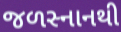
જળસ્નાનથી